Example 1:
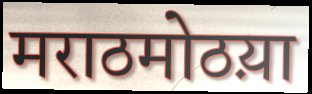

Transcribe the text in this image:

मराठमोठय़ा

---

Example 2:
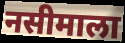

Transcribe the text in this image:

नसीमाला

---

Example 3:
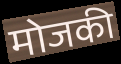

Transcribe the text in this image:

मोजकी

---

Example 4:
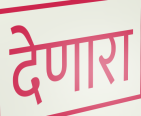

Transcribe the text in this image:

देणारा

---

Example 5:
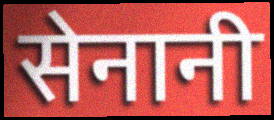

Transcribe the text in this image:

सेनानी